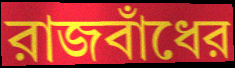
রাজবাঁধের